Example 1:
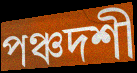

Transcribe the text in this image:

পঞ্চদশী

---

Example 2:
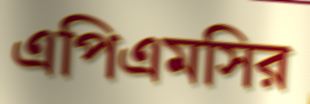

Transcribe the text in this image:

এপিএমসির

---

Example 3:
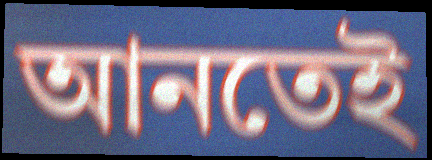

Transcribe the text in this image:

আনতেই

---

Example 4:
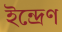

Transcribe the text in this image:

ইন্দ্রেণ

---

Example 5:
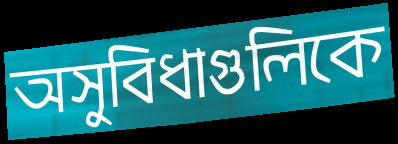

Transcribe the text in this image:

অসুবিধাগুলিকে